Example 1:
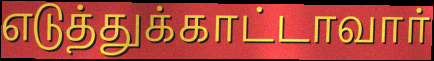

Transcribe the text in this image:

எடுத்துக்காட்டாவார்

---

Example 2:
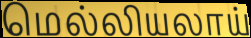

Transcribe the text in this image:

மெல்லியலாய்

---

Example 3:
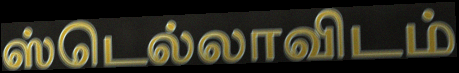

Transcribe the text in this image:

ஸ்டெல்லாவிடம்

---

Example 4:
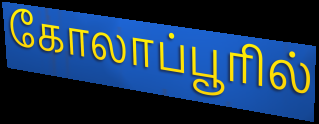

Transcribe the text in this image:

கோலாப்பூரில்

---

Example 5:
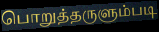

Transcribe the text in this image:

பொறுத்தருளும்படி